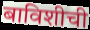
बाविशीची